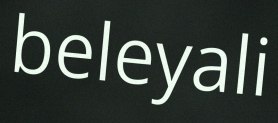
beleyali